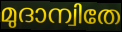
മുദാന്വിതേ